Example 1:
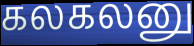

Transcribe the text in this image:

கலகலனு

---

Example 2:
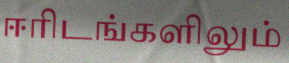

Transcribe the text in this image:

ஈரிடங்களிலும்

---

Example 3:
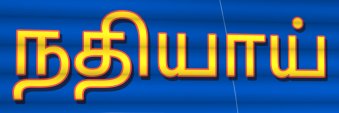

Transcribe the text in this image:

நதியாய்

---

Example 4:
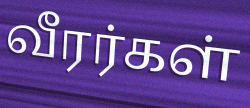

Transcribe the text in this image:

வீரர்கள்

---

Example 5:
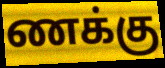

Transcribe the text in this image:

ணக்கு